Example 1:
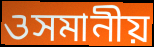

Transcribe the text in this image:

ওসমানীয়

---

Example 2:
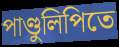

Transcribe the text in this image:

পাণ্ডুলিপিতে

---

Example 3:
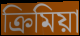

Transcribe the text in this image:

ক্রিমিয়া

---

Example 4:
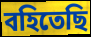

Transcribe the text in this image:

বহিতেছি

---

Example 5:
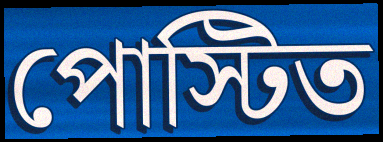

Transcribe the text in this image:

পোস্টিত